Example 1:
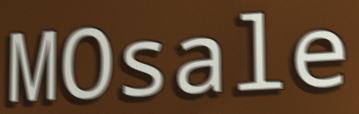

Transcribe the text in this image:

MOsale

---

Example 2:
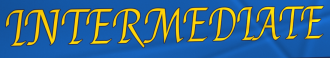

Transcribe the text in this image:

INTERMEDIATE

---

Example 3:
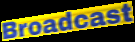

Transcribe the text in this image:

Broadcast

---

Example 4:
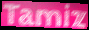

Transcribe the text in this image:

Tamiz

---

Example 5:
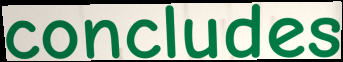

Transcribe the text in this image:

concludes